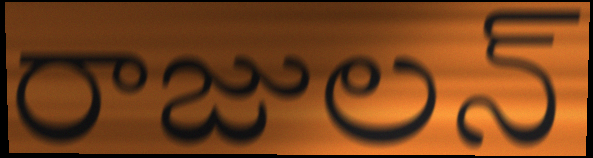
రాజులన్